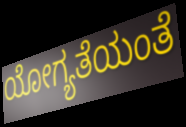
ಯೋಗ್ಯತೆಯಂತೆ